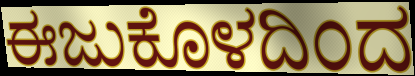
ಈಜುಕೊಳದಿಂದ